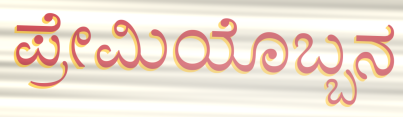
ಪ್ರೇಮಿಯೊಬ್ಬನ